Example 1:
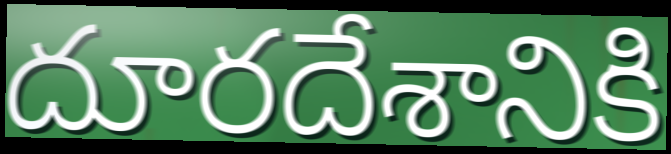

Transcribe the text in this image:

దూరదేశానికి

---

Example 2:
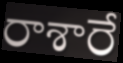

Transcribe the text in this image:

రాశారే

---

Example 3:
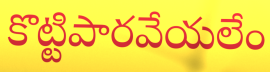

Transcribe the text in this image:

కొట్టిపారవేయలేం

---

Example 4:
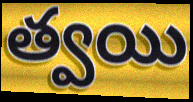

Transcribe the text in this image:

త్వయి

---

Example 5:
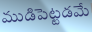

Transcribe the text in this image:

ముడిపెట్టడమే